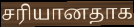
சரியானதாக